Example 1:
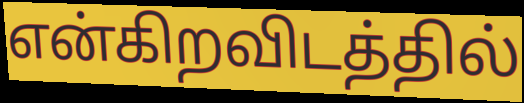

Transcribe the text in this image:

என்கிறவிடத்தில்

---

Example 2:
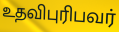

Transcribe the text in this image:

உதவிபுரிபவர்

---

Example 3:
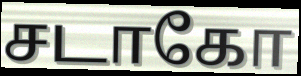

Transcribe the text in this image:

சடாகோ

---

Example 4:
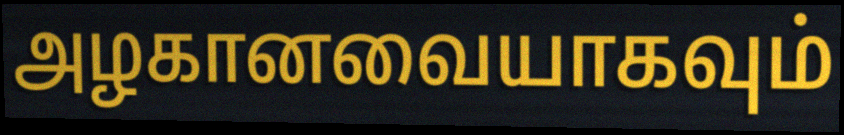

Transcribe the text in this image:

அழகானவையாகவும்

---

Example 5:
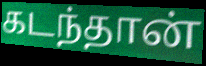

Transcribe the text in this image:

கடந்தான்